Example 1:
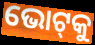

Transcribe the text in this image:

ଭୋଟ୍‍କୁ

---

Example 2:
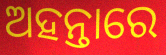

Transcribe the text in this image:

ଅହନ୍ତାରେ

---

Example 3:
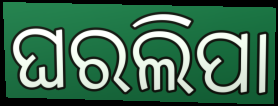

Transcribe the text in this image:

ଘରଲିପା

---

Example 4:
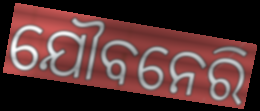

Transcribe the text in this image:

ଯୌବନେରି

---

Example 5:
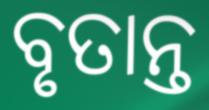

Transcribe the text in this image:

ବୃତାନ୍ତ